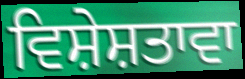
ਵਿਸ਼ੇਸ਼ਤਾਵਾ